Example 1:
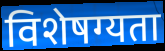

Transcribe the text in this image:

विशेषग्यता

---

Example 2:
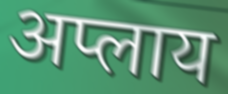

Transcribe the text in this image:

अप्लाय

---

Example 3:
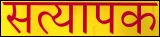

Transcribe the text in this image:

सत्यापक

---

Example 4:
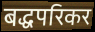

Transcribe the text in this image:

बद्धपरिकर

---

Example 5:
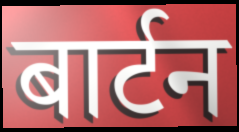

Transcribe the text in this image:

बार्टन